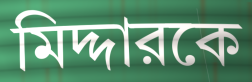
মিদ্দারকে